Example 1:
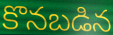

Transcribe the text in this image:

కొనబడిన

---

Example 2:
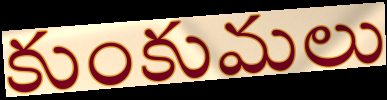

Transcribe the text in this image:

కుంకుమలు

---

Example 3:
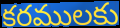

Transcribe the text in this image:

కరములకు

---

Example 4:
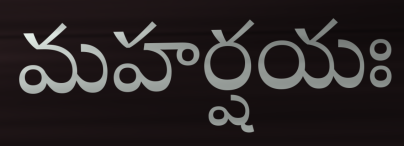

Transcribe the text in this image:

మహర్షయః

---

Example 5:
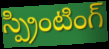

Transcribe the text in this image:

స్ప్రింటింగ్